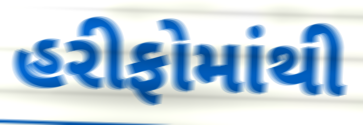
હરીફોમાંથી